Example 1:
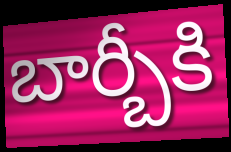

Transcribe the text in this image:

బార్బీకి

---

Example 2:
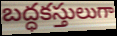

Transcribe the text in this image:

బద్ధకస్తులుగా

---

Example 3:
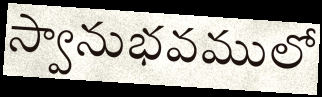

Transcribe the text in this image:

స్వానుభవములో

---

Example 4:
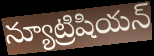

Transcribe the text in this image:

న్యూట్రిషియన్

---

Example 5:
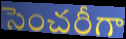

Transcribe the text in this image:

సెంచరీగా